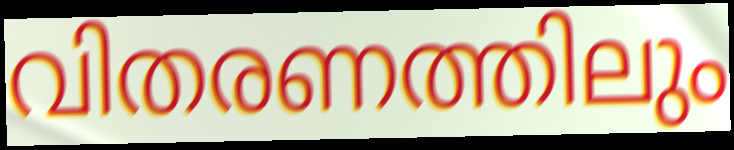
വിതരണത്തിലും